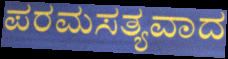
ಪರಮಸತ್ಯವಾದ